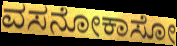
ವಸನೋಕಾಸೋ